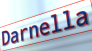
Darnella